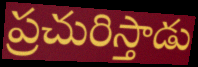
ప్రచురిస్తాడు